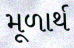
મૂળાર્થ